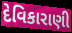
દેવિકારાણી